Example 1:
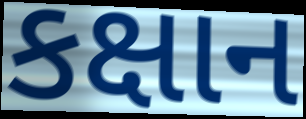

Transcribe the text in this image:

કક્ષાન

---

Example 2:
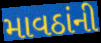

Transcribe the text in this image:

માવઠાંની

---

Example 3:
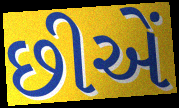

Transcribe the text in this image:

છીએં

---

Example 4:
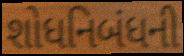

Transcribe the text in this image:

શોધનિબંધની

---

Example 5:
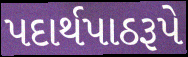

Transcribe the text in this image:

પદાર્થપાઠરૂપે